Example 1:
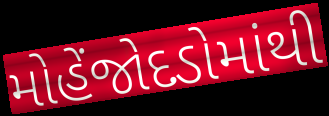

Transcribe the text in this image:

મોહેંજોદડોમાંથી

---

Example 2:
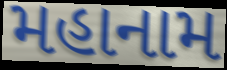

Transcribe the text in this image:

મહાનામ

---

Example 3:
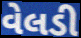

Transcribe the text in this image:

વેલડી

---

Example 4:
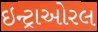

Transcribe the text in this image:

ઇન્ટ્રાઓરલ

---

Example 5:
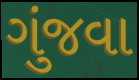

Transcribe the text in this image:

ગુંજવા